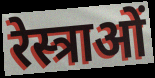
रेस्त्राओं